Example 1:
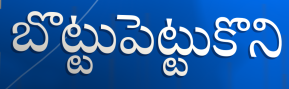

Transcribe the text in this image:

బొట్టుపెట్టుకొని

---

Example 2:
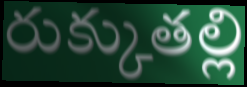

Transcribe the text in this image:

రుక్కుతల్లి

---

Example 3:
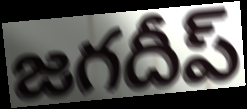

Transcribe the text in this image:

జగదీప్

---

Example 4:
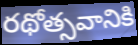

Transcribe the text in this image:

రథోత్సవానికి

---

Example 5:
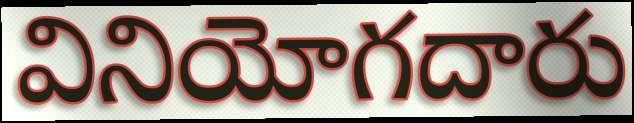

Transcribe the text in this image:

వినియోగదారు